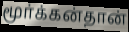
மூர்க்கன்தான்